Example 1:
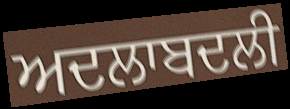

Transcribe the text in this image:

ਅਦਲਾਬਦਲੀ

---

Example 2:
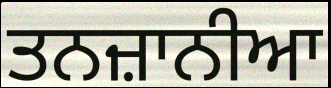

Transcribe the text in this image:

ਤਨਜ਼ਾਨੀਆ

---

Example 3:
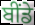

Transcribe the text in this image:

ਬੀਂਡੇ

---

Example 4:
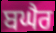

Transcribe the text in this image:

ਬਘੈਰ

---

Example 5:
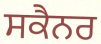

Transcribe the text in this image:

ਸਕੈਨਰ